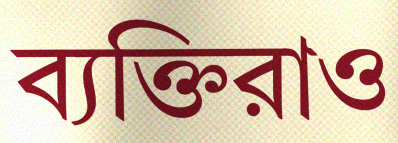
ব্যক্তিরাও